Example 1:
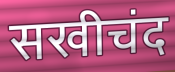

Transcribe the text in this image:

सखीचंद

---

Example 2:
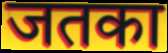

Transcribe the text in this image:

जतका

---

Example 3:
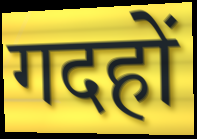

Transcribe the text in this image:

गदहों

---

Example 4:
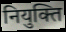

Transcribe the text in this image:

नियुक्ति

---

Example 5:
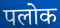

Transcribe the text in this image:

पलोक